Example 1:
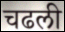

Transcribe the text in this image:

चढली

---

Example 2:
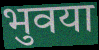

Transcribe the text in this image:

भुवया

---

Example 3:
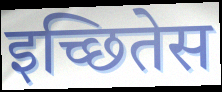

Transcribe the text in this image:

इच्छितेस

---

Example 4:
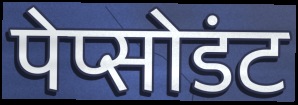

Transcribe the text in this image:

पेप्सोडंट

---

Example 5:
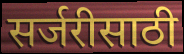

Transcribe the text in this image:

सर्जरीसाठी